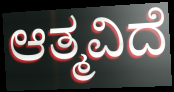
ಆತ್ಮವಿದೆ